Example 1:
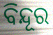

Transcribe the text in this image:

ବିନ୍ଦୂର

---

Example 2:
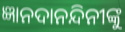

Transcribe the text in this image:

ଜ୍ଞାନଦାନନ୍ଦିନୀଙ୍କୁ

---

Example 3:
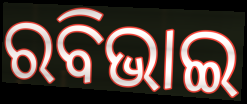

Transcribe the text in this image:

ରବିଭାଇ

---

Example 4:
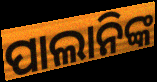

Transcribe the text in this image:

ପାଲାନିଙ୍କ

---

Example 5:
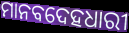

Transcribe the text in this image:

ମାନବଦେହଧାରୀ